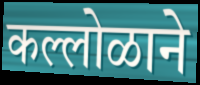
कल्लोळाने